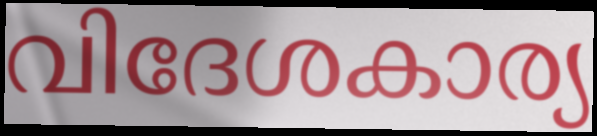
വിദേശകാര്യ